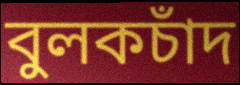
বুলকচাঁদ